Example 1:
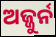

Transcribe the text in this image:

ଅଜ୍ଜୁର୍ନ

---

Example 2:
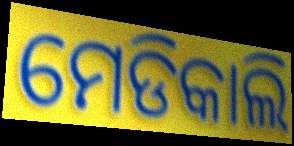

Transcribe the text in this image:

ମେଡିକାଲି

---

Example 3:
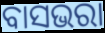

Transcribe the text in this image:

ବାସଭରା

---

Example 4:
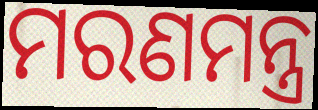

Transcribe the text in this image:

ମରଣମନ୍ତ୍ର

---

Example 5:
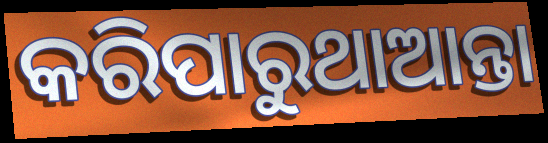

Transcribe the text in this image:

କରିପାରୁଥାଆନ୍ତା